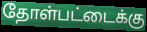
தோள்பட்டைக்கு